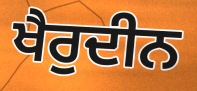
ਖੈਰੁਦੀਨ